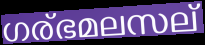
ഗര്ഭമലസല്